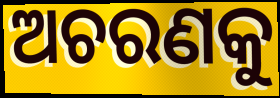
ଅଚରଣକୁ